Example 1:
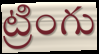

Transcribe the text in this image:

ట్రింగు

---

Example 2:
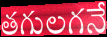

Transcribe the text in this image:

తగులగనే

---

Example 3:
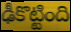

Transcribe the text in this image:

ఢీకొట్టింది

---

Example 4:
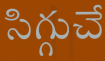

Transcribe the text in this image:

సిగ్గుచే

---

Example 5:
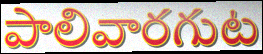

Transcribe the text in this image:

పాలివారగుట